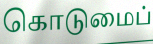
கொடுமைப்